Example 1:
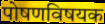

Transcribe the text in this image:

पोषणविषयक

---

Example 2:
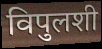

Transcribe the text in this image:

विपुलशी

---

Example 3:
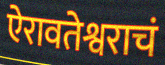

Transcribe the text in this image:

ऐरावतेश्वराचं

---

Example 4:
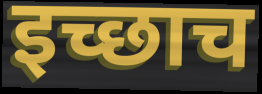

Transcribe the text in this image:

इच्छाच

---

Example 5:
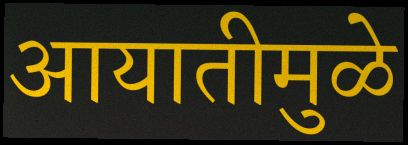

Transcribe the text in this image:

आयातीमुळे